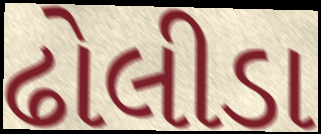
ઢોલીડા